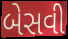
બેસવી